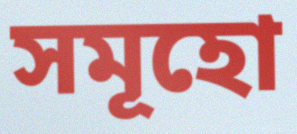
সমূহো